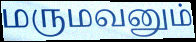
மருமவனும்